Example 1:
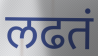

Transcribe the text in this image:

लढतं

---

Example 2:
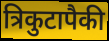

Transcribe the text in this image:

त्रिकुटापैकी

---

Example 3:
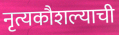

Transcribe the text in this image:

नृत्यकौशल्याची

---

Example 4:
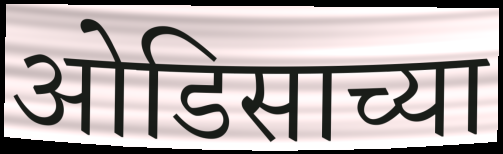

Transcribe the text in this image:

ओडिसाच्या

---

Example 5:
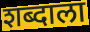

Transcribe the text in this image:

शब्दाला